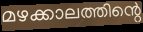
മഴക്കാലത്തിന്റെ